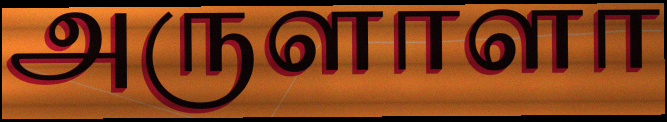
அருளாளா